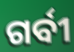
ଗର୍ବୀ